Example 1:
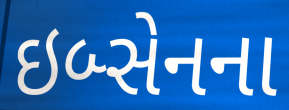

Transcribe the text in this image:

ઇબ્સેનના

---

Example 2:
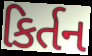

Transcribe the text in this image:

કિર્તન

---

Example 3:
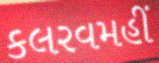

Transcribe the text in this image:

કલરવમહીં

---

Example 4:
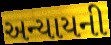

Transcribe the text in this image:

અન્યાયની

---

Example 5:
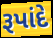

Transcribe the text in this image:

રૂપાંદે